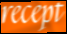
recept